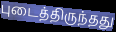
புடைத்திருந்தது